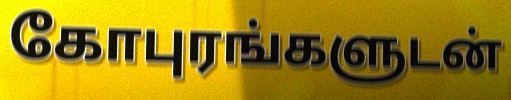
கோபுரங்களுடன்